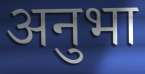
अनुभा